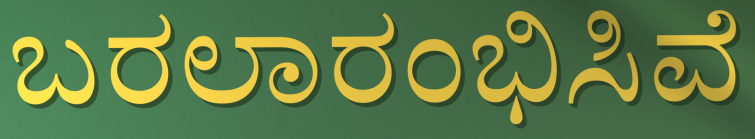
ಬರಲಾರಂಭಿಸಿವೆ